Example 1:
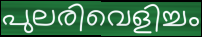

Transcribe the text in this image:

പുലരിവെളിച്ചം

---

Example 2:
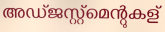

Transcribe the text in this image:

അഡ്ജസ്റ്റ്മെന്റുകള്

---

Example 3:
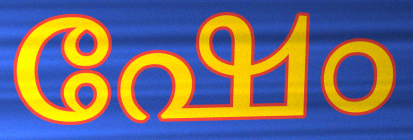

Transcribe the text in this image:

ഷേം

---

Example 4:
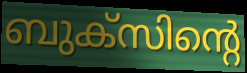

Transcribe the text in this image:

ബുക്സിന്റെ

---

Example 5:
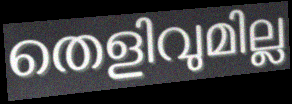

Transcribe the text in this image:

തെളിവുമില്ല